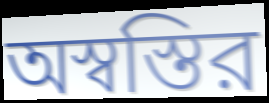
অস্বস্তির